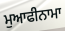
ਮੁਆਫੀਨਾਮਾ